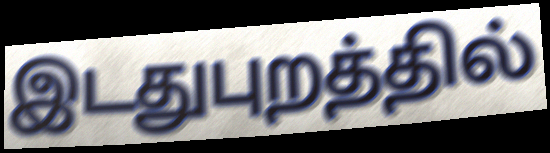
இடதுபுறத்தில்